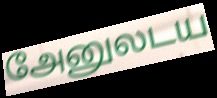
அேனுலடய